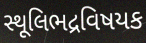
સ્થૂલિભદ્રવિષયક